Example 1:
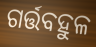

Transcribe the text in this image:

ଗର୍ତ୍ତବହୁଳ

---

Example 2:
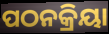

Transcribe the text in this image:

ପଠନକ୍ରିୟା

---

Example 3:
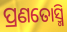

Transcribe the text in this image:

ପ୍ରଣତୋସ୍ମି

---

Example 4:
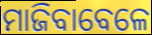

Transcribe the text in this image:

ମାଜିବାବେଳେ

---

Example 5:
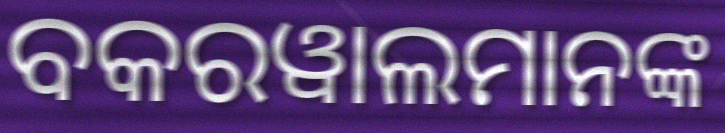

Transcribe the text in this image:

ବକରୱାଲମାନଙ୍କ